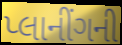
પ્લાનીંગની